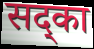
सद्का